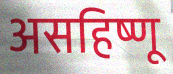
असहिष्णू